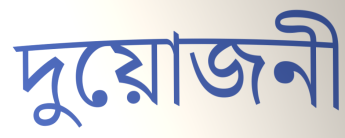
দুয়োজনী